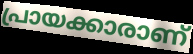
പ്രായക്കാരാണ്